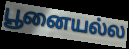
பூனையல்ல